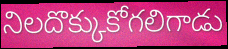
నిలదొక్కుకోగలిగాడు